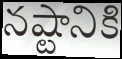
నష్టానికి